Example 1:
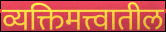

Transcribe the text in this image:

व्यक्तिमत्त्वातील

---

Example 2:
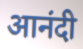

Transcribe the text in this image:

आनंदी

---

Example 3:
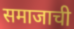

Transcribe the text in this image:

समाजाची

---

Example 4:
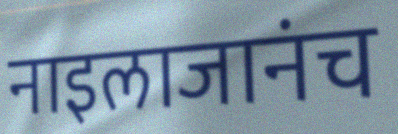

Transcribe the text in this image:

नाइलाजानंच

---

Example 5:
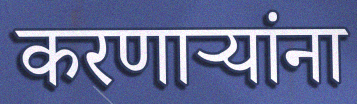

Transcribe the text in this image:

करणाऱ्यांना